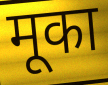
मूका